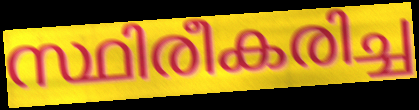
സ്ഥിരീകരിച്ച